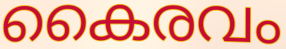
കൈരവം